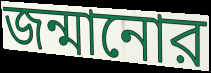
জন্মানোর